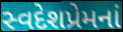
સ્વદેશપ્રેમનાં